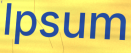
Ipsum